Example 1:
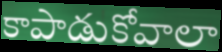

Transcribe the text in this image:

కాపాడుకోవాలా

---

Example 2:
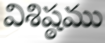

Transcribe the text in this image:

విశిష్ఠము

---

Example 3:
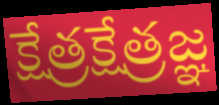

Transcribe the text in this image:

క్షేత్రక్షేత్రజ్ఞ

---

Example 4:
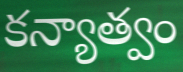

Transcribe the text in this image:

కన్యాత్వం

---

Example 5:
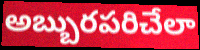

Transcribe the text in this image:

అబ్బురపరిచేలా